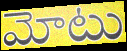
మోటు